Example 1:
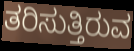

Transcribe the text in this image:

ತರಿಸುತ್ತಿರುವ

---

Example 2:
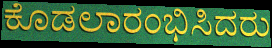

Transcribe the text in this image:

ಕೊಡಲಾರಂಭಿಸಿದರು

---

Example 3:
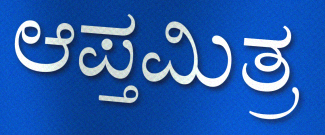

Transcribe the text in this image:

ಆಪ್ತಮಿತ್ರ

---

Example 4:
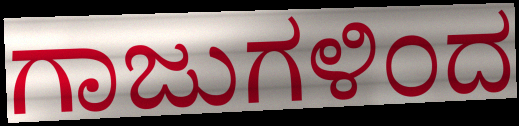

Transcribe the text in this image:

ಗಾಜುಗಳಿಂದ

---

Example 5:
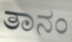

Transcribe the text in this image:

ತಾನಂ